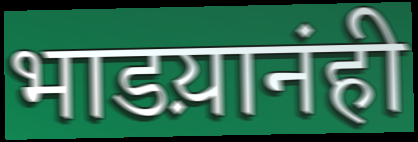
भाडय़ानंही